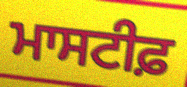
ਮਾਸਟੀਫ਼